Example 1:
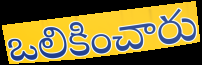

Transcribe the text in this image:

ఒలికించారు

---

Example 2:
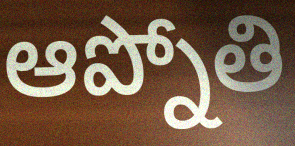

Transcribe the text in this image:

ఆప్నోతి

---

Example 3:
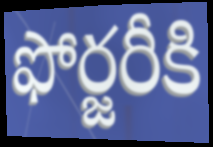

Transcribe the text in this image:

ఫోర్జరీకి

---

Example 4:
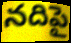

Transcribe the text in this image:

నదిపై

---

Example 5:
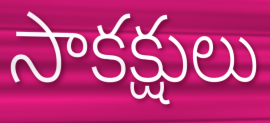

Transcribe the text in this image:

సాకక్షులు